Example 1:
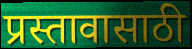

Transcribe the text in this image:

प्रस्तावासाठी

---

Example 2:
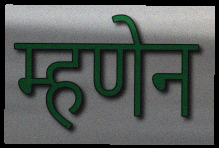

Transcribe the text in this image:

म्हणेन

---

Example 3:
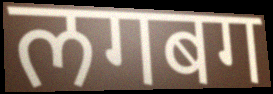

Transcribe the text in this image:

लगबग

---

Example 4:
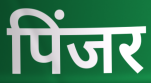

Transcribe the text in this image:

पिंजर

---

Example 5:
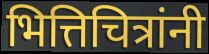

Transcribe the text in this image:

भित्तिचित्रांनी